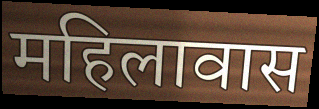
महिलावास